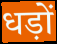
धड़ों